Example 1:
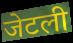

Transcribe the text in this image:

जेटली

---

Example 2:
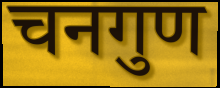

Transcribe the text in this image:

चनगुण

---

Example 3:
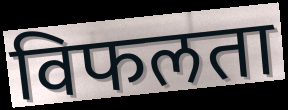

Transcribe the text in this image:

विफलता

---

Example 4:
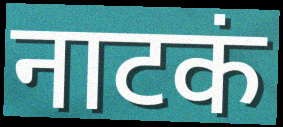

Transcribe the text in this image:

नाटकं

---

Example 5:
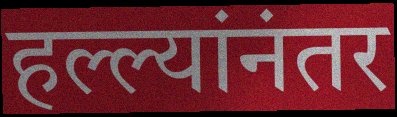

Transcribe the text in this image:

हल्ल्यांनंतर